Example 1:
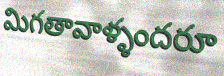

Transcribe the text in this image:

మిగతావాళ్ళందరూ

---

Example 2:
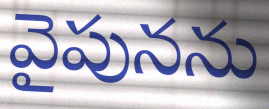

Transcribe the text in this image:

వైపునను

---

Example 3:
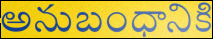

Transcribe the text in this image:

అనుబంధానికి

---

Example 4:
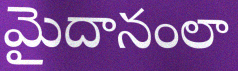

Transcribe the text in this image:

మైదానంలా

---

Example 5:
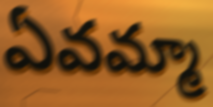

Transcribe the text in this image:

ఏవమ్మా